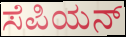
ಸೆಪಿಯನ್